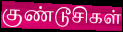
குண்டூசிகள்